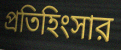
প্রতিহিংসার